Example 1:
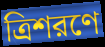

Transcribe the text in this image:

ত্রিশরণে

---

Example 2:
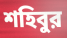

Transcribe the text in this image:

শহিবুর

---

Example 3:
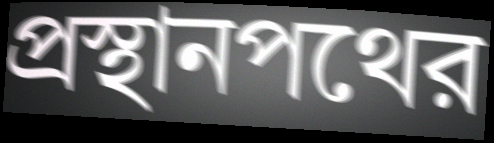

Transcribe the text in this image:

প্রস্থানপথের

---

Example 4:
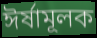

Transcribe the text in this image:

ঈর্ষামূলক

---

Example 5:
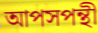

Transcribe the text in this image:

আপসপন্থী